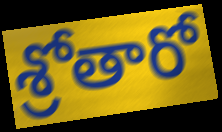
శ్రోతారో